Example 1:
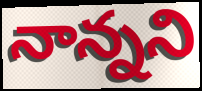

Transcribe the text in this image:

నాన్నని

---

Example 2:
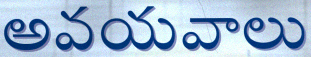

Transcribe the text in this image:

అవయవాలు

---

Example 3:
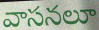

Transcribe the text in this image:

వాసనలూ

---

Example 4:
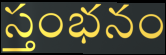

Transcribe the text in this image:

స్తంభనం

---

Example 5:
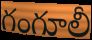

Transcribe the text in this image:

గంగూలీ